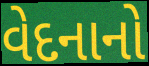
વેદનાનો